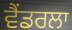
ਵੈਂਡਰਲਾ